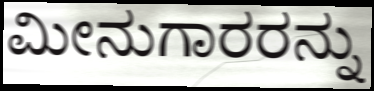
ಮೀನುಗಾರರನ್ನು